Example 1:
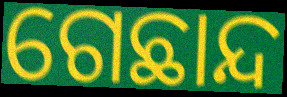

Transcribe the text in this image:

ଗେଛାନ୍ଦ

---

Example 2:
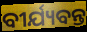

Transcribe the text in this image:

ବୀର୍ଯ୍ୟବନ୍ତ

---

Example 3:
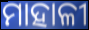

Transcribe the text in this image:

ମାହାଳୀ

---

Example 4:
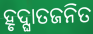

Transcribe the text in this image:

ହୃଦ୍ଘାତଜନିତ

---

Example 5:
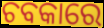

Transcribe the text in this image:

ଚବକାରେ